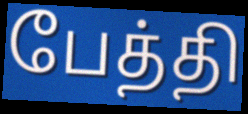
பேத்தி